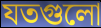
যতগুলো